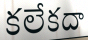
కలేకదా